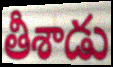
తీశాడు